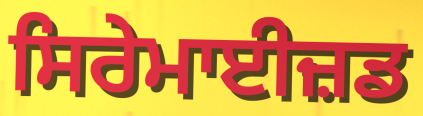
ਸਿਰੇਮਾਈਜ਼ਡ